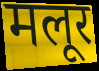
मलूर